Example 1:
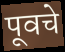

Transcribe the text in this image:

पूवचे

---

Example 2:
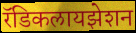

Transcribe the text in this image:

रॅडिकलायझेशन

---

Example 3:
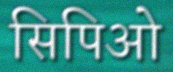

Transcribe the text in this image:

सिपिओ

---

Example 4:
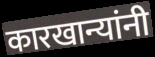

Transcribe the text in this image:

कारखान्यांनी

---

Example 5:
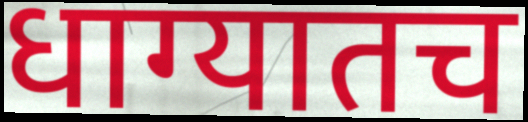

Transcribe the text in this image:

धाग्यातच